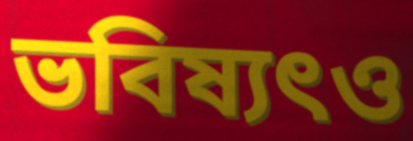
ভবিষ্যৎও